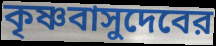
কৃষ্ণবাসুদেবের